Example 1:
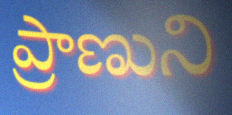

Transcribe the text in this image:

ప్రాణుని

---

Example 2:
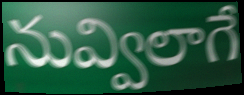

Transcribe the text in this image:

నువ్విలాగే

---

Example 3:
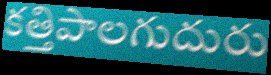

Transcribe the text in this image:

కత్తిపాలగుదురు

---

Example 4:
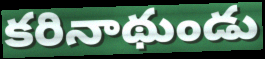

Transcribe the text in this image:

కరినాథుండు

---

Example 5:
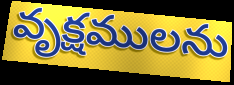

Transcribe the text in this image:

వృక్షములను